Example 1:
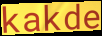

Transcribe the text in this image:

kakde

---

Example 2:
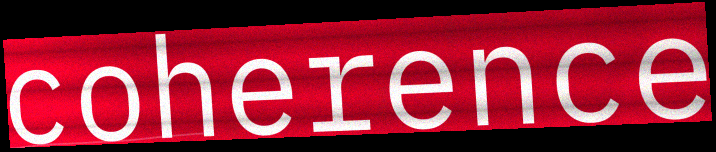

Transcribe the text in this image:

coherence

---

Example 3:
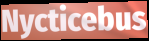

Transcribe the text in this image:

Nycticebus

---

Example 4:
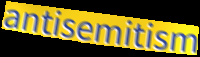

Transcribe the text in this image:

antisemitism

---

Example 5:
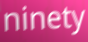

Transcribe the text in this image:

ninety